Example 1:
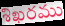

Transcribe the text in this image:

శిఖరము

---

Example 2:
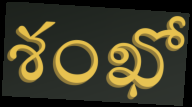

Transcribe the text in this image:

శంఖో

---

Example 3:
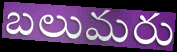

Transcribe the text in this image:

బలుమరు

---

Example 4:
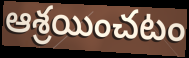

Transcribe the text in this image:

ఆశ్రయించటం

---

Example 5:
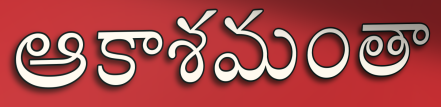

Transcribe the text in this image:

ఆకాశమంతా